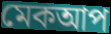
মেকআপ